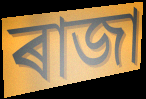
ৰাজা